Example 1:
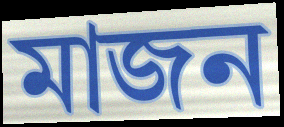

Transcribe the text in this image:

মাজন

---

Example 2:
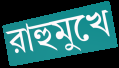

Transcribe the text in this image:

রাহুমুখে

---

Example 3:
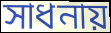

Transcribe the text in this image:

সাধনায়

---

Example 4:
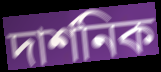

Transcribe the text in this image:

দার্শনিক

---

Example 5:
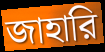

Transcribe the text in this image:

জাহারি